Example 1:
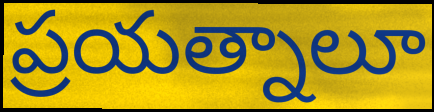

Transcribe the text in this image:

ప్రయత్నాలూ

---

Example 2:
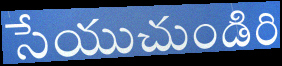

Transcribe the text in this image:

సేయుచుండిరి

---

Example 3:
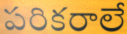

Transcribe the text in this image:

పరికరాలే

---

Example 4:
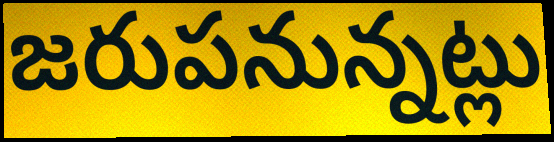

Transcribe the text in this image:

జరుపనున్నట్లు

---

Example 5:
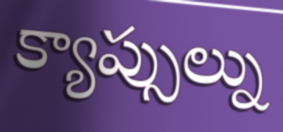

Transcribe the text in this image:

క్యాప్సుల్ను